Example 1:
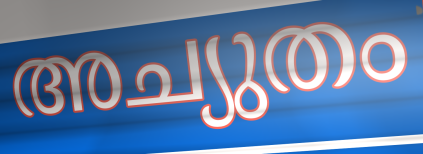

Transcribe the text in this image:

അച്യുതം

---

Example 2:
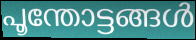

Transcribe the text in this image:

പൂന്തോട്ടങ്ങൾ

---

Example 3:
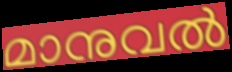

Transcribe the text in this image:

മാനുവൽ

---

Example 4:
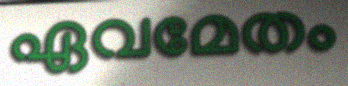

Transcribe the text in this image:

ഏവമേതം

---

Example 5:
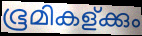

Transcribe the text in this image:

ഭൂമികള്ക്കും